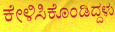
ಕೇಳಿಸಿಕೊಂಡಿದ್ದಳು